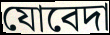
যোবেদা